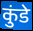
कुंडे